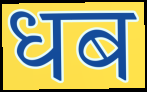
धब